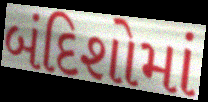
બંદિશોમાં